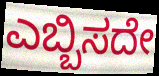
ಎಬ್ಬಿಸದೇ